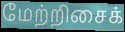
மேற்றிசைக்